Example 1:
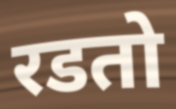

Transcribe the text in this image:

रडतो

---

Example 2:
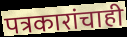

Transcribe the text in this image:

पत्रकारांचाही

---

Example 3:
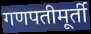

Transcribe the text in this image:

गणपतीमूर्ती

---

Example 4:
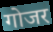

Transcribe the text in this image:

गोजर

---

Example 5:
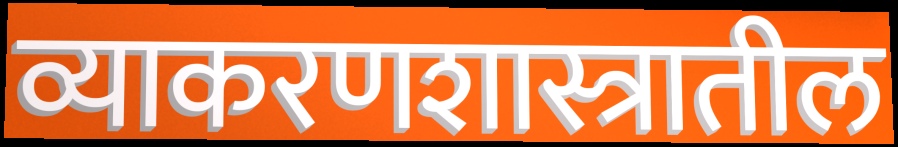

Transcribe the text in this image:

व्याकरणशास्त्रातील